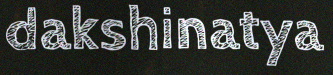
dakshinatya